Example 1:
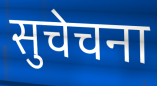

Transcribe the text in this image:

सुचेचना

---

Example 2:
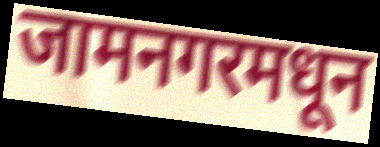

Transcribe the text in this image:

जामनगरमधून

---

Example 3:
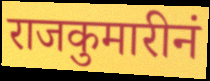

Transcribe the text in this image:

राजकुमारीनं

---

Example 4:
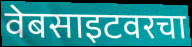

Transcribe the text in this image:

वेबसाइटवरचा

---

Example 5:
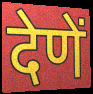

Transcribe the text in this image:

देणें